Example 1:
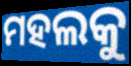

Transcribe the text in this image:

ମହଲକୁ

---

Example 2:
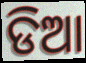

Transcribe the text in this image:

ଡିଆ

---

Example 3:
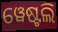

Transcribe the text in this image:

ୱେଷ୍ଟଲି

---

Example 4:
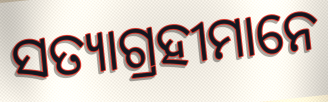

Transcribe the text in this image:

ସତ୍ୟାଗ୍ରହୀମାନେ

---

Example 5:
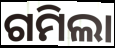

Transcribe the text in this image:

ଗମିଲା